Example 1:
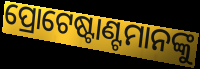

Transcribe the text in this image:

ପ୍ରୋଟେଷ୍ଟାଣ୍ଟମାନଙ୍କୁ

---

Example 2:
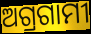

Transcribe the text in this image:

ଅଗ୍ରଗାମୀ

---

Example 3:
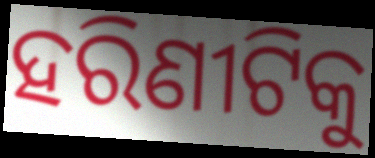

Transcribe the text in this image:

ହରିଣୀଟିକୁ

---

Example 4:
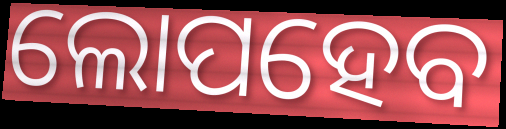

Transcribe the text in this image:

ଲୋପହେବ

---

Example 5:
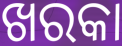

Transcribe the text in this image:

ଖରକା